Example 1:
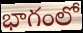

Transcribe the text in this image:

భాగంలో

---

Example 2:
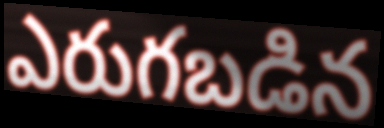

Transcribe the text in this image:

ఎరుగబడిన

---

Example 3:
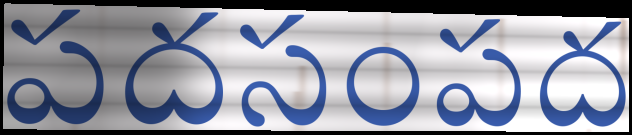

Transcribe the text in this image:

పదసంపద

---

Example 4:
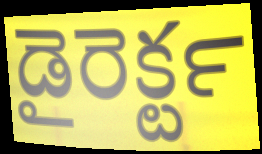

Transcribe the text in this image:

డైరెక్టర్‍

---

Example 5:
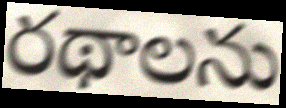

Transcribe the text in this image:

రథాలను